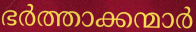
ഭർത്താക്കന്മാർ